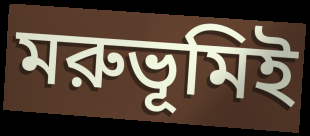
মরুভূমিই